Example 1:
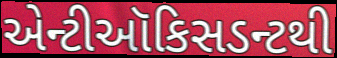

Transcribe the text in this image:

એન્ટીઑકિસડન્ટથી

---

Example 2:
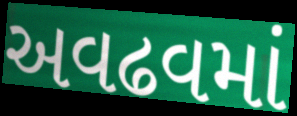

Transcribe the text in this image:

અવઢવમાં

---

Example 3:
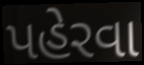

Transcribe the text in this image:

પહેરવા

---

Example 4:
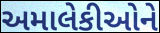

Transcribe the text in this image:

અમાલેકીઓને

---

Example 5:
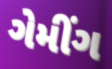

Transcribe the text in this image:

ગેમીંગ